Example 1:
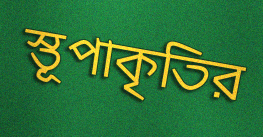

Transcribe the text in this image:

স্তূপাকৃতির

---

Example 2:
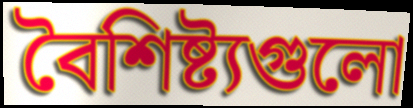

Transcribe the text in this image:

বৈশিষ্ট্যগুলো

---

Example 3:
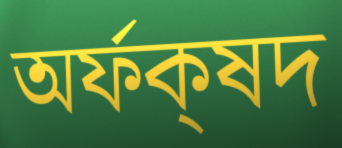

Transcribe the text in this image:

অর্ফক্‌ষদ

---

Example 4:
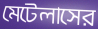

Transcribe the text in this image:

মেটেলাসের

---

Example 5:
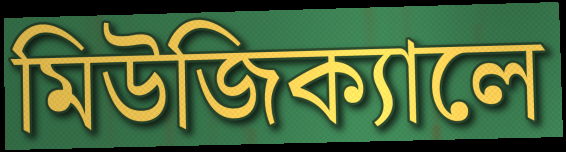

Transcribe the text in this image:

মিউজিক্যালে